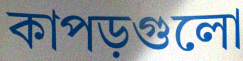
কাপড়গুলো